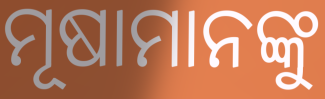
ମୂଷାମାନଙ୍କୁ